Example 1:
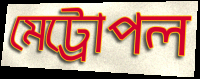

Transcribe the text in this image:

মেট্রোপল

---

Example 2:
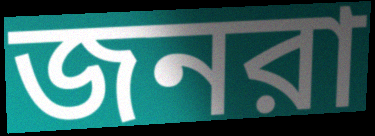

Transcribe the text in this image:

জনরা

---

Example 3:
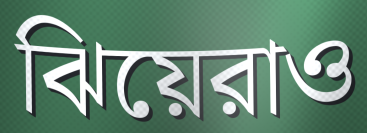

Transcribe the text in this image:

ঝিয়েরাও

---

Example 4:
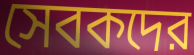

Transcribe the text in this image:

সেবকদের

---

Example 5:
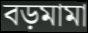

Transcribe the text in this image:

বড়মামা